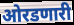
ओरडणारी